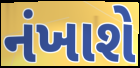
નંખાશે